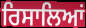
ਰਿਸਾਲਿਆਂ